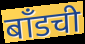
बाँडची